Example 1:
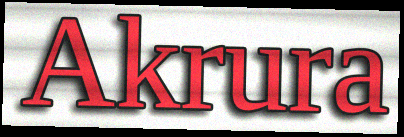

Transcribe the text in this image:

Akrura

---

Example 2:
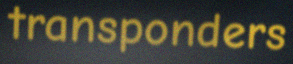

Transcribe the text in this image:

transponders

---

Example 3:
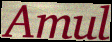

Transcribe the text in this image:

Amul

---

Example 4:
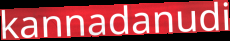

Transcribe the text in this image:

kannadanudi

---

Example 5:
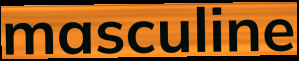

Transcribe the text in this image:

masculine